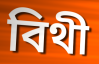
বিথী